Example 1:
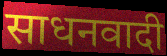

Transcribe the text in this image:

साधनवादी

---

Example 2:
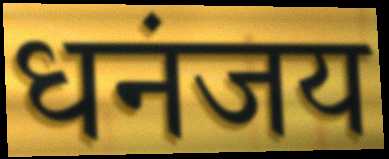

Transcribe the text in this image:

धनंजय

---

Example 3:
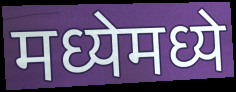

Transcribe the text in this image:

मध्येमध्ये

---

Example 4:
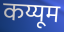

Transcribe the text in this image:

कय्यूम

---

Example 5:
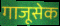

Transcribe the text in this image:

गाजूसेक